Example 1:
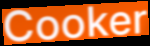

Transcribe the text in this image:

Cooker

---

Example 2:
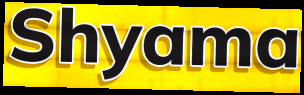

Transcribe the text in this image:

Shyama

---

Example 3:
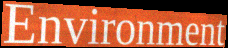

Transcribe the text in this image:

Environment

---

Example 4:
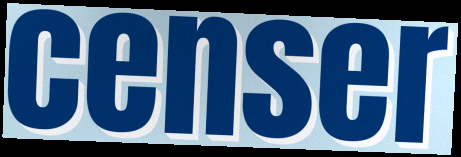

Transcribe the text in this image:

censer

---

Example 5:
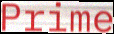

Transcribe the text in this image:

Prime